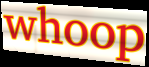
whoop